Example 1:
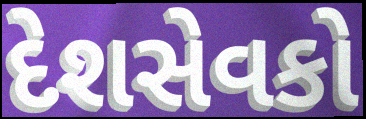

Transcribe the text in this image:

દેશસેવકો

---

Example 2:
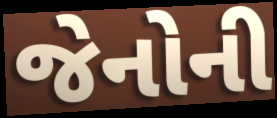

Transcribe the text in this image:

જેનોની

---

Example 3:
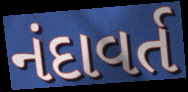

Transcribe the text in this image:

નંદાવર્ત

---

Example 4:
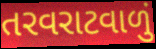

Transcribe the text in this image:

તરવરાટવાળું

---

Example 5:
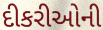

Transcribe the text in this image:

દીકરીઓની